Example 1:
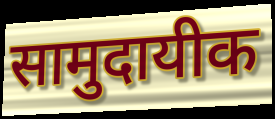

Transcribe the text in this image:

सामुदायीक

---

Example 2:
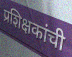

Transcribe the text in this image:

प्रशिक्षकांची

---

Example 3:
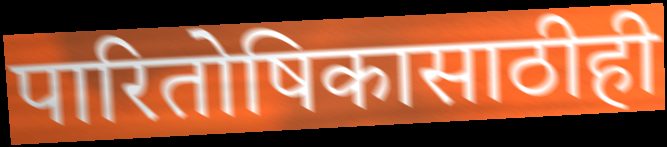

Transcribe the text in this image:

पारितोषिकासाठीही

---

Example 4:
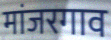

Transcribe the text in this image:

मांजरगाव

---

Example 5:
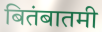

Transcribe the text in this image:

बितंबातमी